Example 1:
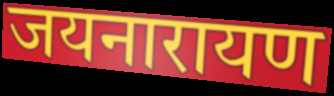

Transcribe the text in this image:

जयनारायण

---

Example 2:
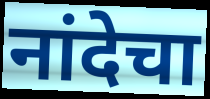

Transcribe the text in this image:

नांदेचा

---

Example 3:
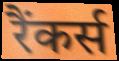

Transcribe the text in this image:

रैंकर्स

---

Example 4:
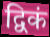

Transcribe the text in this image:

द्विकं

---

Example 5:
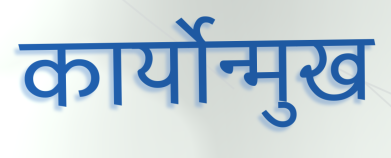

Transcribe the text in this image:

कार्योन्मुख